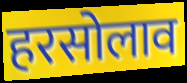
हरसोलाव